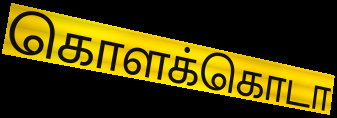
கொளக்கொடா